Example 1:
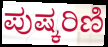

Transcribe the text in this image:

ಪುಷ್ಕರಿಣಿ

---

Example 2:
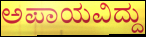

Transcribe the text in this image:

ಅಪಾಯವಿದ್ದು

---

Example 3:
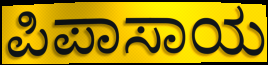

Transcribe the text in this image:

ಪಿಪಾಸಾಯ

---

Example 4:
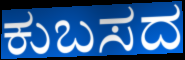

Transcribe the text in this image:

ಕುಬಸದ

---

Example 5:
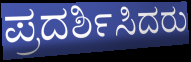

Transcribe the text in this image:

ಪ್ರದರ್ಶಿಸಿದರು